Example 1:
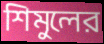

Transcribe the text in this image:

শিমুলের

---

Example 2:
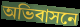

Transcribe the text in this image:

অভিবাসনে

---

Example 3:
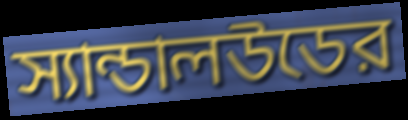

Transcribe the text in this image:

স্যান্ডালউডের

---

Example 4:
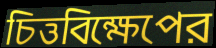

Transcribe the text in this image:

চিত্তবিক্ষেপের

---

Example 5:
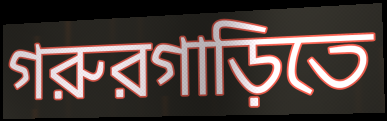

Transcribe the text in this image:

গরুরগাড়িতে